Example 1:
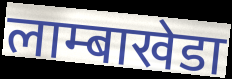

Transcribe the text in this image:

लाम्बाखेडा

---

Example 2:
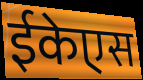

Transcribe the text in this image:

ईकेएस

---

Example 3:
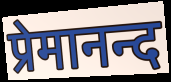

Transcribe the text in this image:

प्रेमानन्द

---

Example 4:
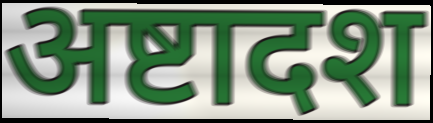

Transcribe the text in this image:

अष्टादश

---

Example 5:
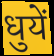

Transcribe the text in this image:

धुयें